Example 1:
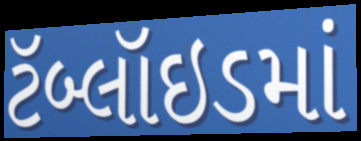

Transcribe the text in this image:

ટૅબ્લૉઇડમાં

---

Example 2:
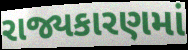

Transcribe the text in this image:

રાજ્યકારણમાં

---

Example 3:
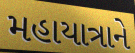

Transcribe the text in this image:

મહાયાત્રાને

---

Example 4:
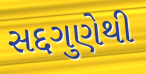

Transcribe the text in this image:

સદ્દગુણેથી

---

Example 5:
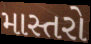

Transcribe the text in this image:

માસ્તરો